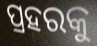
ପ୍ରହରକୁ